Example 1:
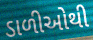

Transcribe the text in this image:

ડાળીઓથી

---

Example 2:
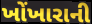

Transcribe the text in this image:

ખોંખારાની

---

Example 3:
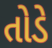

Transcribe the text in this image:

તોડે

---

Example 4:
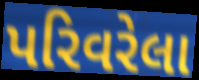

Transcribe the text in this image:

પરિવરેલા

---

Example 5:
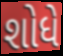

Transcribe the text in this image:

શોધે